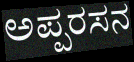
ಅಪ್ಪರಸನ